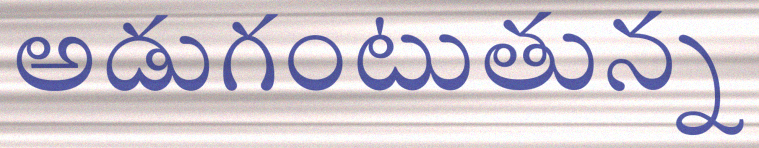
అడుగంటుతున్న